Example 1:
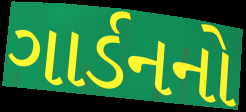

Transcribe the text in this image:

ગાર્ડનનો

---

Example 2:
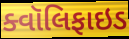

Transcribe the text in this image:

ક્વૉલિફાઇડ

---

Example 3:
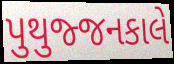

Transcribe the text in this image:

પુથુજ્જનકાલે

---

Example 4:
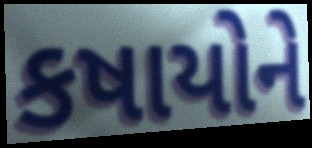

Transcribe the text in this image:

કષાયોને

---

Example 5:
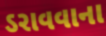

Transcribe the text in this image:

ડરાવવાના